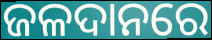
ଜଳଦାନରେ